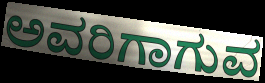
ಅವರಿಗಾಗುವ